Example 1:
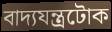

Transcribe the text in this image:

বাদ্যযন্ত্ৰটোক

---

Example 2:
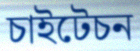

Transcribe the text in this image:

চাইটেচন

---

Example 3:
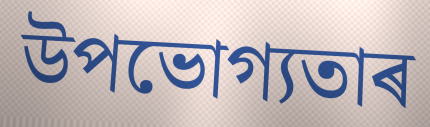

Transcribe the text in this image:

উপভোগ্যতাৰ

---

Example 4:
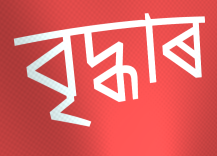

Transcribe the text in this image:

বৃদ্ধাৰ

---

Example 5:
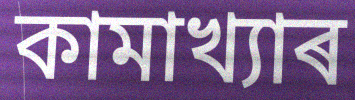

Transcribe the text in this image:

কামাখ্যাৰ